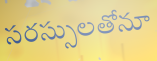
సరస్సులతోనూ